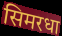
सिमरधा